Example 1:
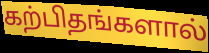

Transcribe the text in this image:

கற்பிதங்களால்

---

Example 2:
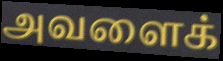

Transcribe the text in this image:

அவளைக்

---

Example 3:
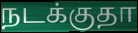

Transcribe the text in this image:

நடக்குதா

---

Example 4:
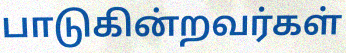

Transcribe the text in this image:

பாடுகின்றவர்கள்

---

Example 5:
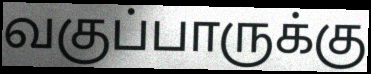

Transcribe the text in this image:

வகுப்பாருக்கு